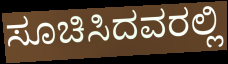
ಸೂಚಿಸಿದವರಲ್ಲಿ